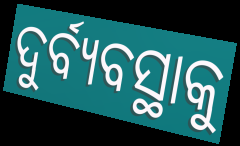
ଦୁର୍ବ୍ୟବସ୍ଥାକୁ